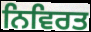
ਨਿਵਿਰਤ